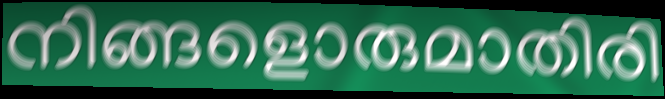
നിങ്ങളൊരുമാതിരി